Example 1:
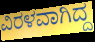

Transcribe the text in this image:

ವಿರಳವಾಗಿದ್ದ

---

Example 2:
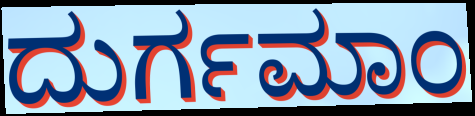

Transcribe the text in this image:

ದುರ್ಗಮಾಂ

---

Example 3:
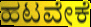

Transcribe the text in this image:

ಹಟವೇಕೆ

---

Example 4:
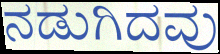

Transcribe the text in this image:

ನಡುಗಿದವು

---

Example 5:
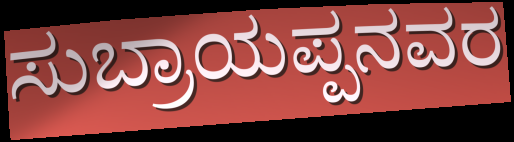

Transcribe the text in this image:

ಸುಬ್ರಾಯಪ್ಪನವರ